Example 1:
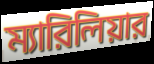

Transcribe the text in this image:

ম্যারিলিয়ার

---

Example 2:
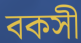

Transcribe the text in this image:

বকসী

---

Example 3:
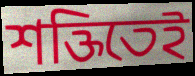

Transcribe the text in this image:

শক্তিতেই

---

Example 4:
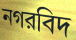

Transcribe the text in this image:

নগরবিদ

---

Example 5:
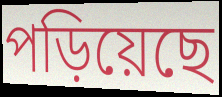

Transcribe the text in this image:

পড়িয়েছে